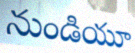
నుండియూ